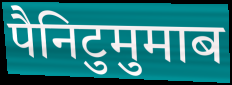
पैनिटुमुमाब